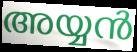
അയ്യൻ